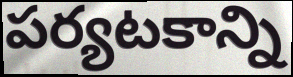
పర్యటకాన్ని